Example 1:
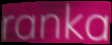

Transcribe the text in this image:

ranka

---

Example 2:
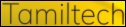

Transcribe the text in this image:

Tamiltech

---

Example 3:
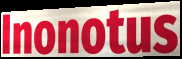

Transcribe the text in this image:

Inonotus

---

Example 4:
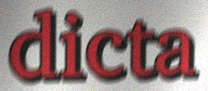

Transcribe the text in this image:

dicta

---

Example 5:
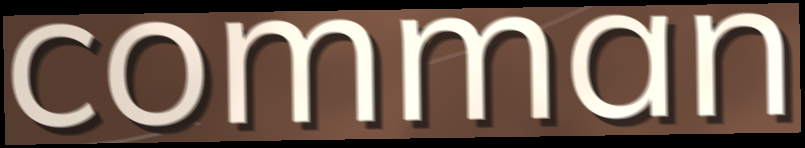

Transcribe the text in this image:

comman